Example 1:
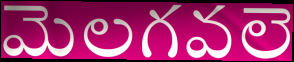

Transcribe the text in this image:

మెలగవలె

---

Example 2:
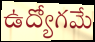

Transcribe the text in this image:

ఉద్యోగమే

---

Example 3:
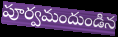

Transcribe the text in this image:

పూర్వమందుండిన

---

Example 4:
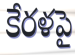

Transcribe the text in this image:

కేరళపై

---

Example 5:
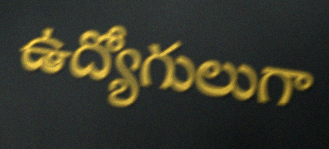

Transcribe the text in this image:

ఉద్యోగులుగా